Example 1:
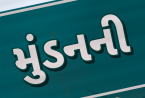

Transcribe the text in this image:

મુંડનની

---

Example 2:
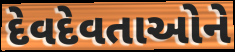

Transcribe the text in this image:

દેવદેવતાઓને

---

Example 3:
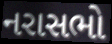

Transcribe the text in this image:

નરાસભો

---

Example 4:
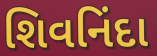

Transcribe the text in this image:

શિવનિંદા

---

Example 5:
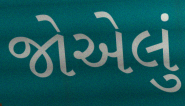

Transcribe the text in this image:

જોએલું